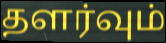
தளர்வும்